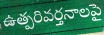
ఉత్పరివర్తనాలపై